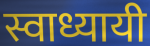
स्वाध्यायी